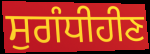
ਸੁਗੰਧੀਹੀਣ